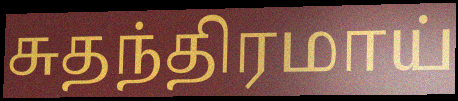
சுதந்திரமாய்